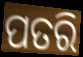
ପତରି